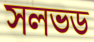
সলভড